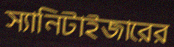
স্যানিটাইজারের